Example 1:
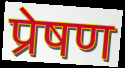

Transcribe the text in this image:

प्रेषण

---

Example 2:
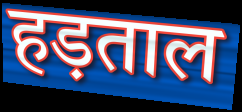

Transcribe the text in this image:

हड़ताल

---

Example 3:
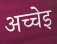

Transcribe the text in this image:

अच्चेइ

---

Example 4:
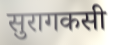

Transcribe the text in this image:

सुरागकसी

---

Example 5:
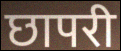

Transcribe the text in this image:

छापरी